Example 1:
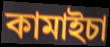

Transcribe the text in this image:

কামাইচা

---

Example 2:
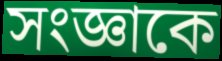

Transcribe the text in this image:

সংজ্ঞাকে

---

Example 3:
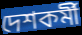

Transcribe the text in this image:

দেশকর্মী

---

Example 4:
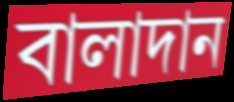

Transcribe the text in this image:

বালাদান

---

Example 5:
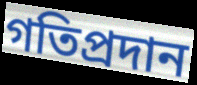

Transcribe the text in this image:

গতিপ্রদান